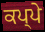
ਕਪ੍ਪੇ